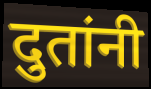
दुतांनी